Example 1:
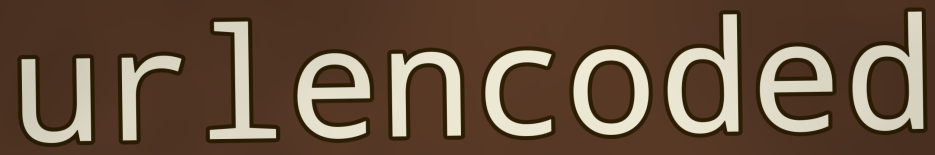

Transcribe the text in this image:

urlencoded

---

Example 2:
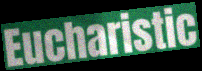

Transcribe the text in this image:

Eucharistic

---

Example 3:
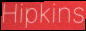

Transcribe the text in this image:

Hipkins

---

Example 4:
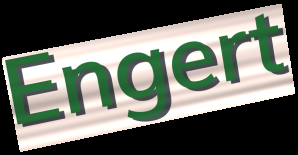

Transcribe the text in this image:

Engert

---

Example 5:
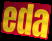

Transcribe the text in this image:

eda